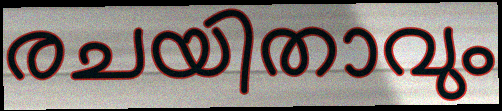
രചയിതാവും